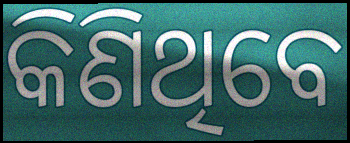
କିଣିଥିବେ